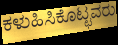
ಕಳುಹಿಸಿಕೊಟ್ಟವರು